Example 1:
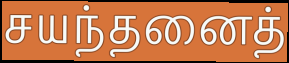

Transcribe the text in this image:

சயந்தனைத்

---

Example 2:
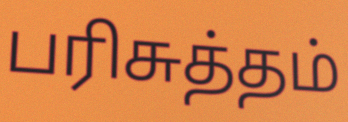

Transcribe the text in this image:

பரிசுத்தம்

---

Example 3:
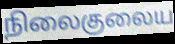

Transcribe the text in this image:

நிலைகுலைய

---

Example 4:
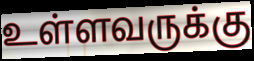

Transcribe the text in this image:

உள்ளவருக்கு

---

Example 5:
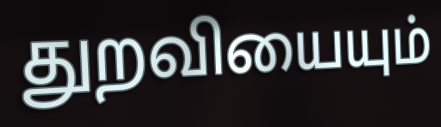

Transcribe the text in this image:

துறவியையும்